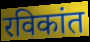
रविकांत